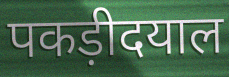
पकड़ीदयाल